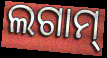
ଲଗାମ୍